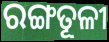
ରଙ୍ଗତୂଳୀ